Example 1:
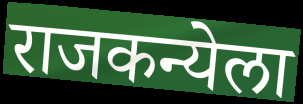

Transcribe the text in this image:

राजकन्येला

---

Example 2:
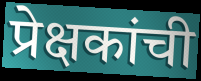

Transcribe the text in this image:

प्रेक्षकांची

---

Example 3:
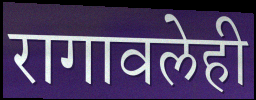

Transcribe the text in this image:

रागावलेही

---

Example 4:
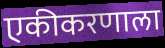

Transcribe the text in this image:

एकीकरणाला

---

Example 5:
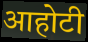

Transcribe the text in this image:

आहोटी